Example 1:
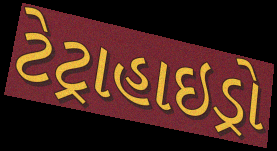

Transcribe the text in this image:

ટેટ્રાહાઇડ્રો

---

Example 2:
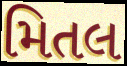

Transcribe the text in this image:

મિતલ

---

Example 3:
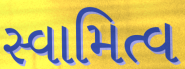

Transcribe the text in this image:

સ્વામિત્વ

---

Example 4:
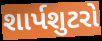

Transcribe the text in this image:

શાર્પશુટરો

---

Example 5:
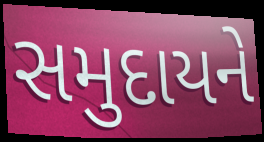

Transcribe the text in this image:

સમુદાયને